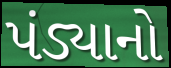
પંડ્યાનો